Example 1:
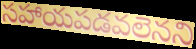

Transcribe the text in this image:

సహాయపడవలెనని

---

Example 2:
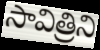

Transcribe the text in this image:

సావిత్రిని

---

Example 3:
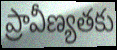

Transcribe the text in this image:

ప్రావీణ్యతకు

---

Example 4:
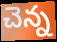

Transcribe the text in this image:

చెన్న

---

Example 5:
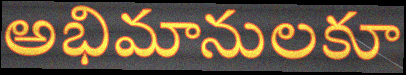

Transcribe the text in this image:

అభిమానులకూ